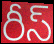
రీస్